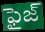
ఫైజ్